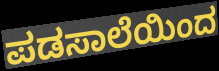
ಪಡಸಾಲೆಯಿಂದ